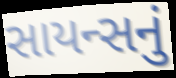
સાયન્સનું